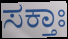
ಸಕ್ತಾಃ